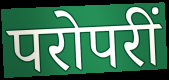
परोपरीं